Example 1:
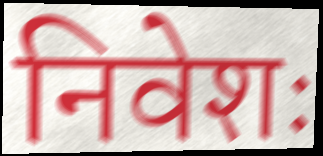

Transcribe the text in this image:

निवेशः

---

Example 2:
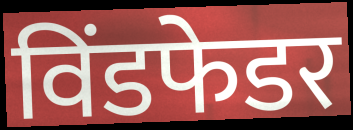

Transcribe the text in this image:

विंडफेडर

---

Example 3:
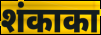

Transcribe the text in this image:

शंकाका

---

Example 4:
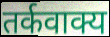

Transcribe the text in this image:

तर्कवाक्य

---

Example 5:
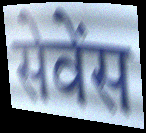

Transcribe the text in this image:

सेवेंस